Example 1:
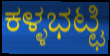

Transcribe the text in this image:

ಕಳ್ಳಭಟ್ಟಿ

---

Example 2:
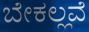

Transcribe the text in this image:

ಬೇಕಲ್ಲವೆ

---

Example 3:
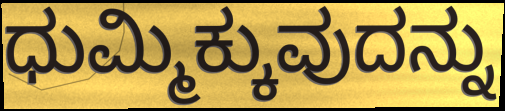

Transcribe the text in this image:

ಧುಮ್ಮಿಕ್ಕುವುದನ್ನು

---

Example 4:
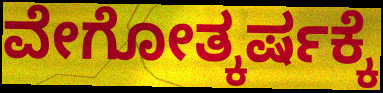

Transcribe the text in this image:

ವೇಗೋತ್ಕರ್ಷಕ್ಕೆ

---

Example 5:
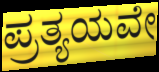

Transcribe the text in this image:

ಪ್ರತ್ಯಯವೇ